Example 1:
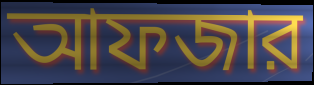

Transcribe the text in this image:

আফজার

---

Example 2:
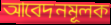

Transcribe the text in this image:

আবেদনমূলক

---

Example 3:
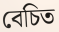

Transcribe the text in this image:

বেচিত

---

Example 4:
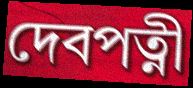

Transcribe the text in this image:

দেবপত্নী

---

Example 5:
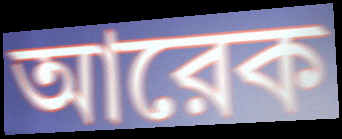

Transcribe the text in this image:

আরেক